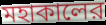
মহাকালের